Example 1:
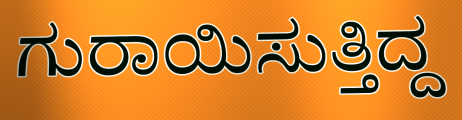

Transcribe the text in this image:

ಗುರಾಯಿಸುತ್ತಿದ್ದ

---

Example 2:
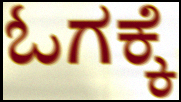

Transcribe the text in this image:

ಓಗಕ್ಕೆ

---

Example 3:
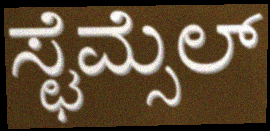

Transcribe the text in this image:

ಸ್ಟೆಮ್ಸೆಲ್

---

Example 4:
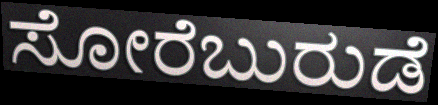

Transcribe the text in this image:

ಸೋರೆಬುರುಡೆ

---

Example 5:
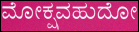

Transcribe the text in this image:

ಮೋಕ್ಷವಹುದೋ